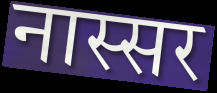
नास्सर